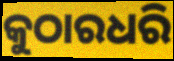
କୁଠାରଧରି